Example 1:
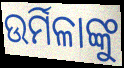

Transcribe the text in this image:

ଉର୍ମିଳାଙ୍କୁ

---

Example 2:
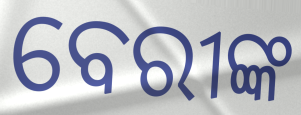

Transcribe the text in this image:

ବେରୀଙ୍କ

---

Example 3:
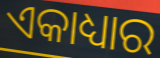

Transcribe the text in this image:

ଏକାଧ୍ୟାର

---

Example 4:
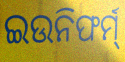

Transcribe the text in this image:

ଇଉନିଫର୍ମ୍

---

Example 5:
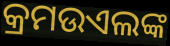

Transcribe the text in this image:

କ୍ରମଉଏଲଙ୍କ